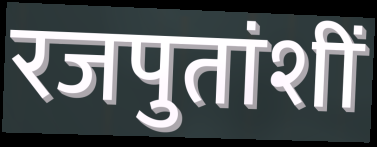
रजपुतांशीं